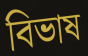
বিভাষ